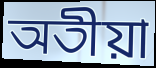
অতীয়া